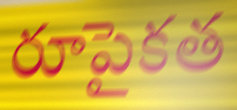
రూపైకత